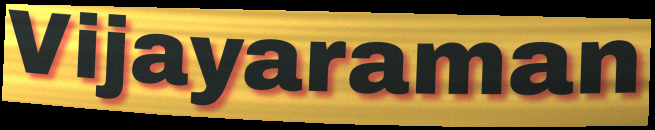
Vijayaraman